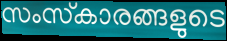
സംസ്‌കാരങ്ങളുടെ